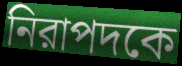
নিরাপদকে